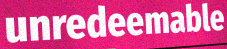
unredeemable